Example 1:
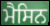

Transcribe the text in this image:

ਮੈਸਿਨ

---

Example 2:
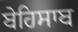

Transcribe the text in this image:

ਬੇਹਿਸਾਬ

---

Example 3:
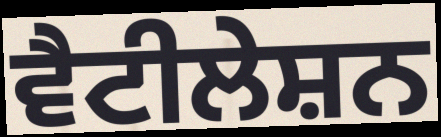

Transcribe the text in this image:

ਵੈਟੀਲੇਸ਼ਨ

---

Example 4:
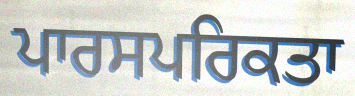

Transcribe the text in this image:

ਪਾਰਸਪਰਿਕਤਾ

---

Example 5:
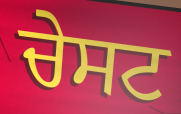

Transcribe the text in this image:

ਚੇਸਟ